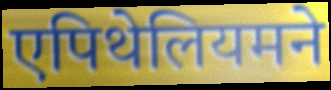
एपिथेलियमने